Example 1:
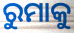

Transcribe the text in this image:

ରୁମାକୁ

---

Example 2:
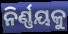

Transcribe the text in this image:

ନିର୍ଣ୍ଣୟକୁ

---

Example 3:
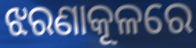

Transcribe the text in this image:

ଝରଣାକୂଳରେ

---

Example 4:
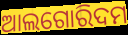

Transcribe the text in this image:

ଆଲଗୋରିଦମ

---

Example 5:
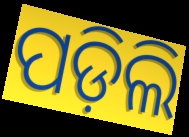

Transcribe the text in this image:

ପଡ଼ିଲି